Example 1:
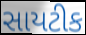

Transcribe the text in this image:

સાયટીક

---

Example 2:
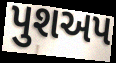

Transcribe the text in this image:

પુશઅપ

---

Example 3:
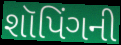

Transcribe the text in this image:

શૉપિંગની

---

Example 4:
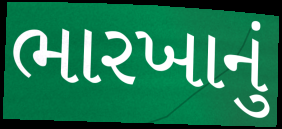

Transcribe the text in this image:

ભારખાનું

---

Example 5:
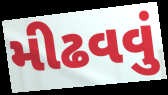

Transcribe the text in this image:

મીઢવવું